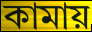
কামায়